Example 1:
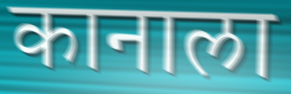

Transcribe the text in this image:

कानाला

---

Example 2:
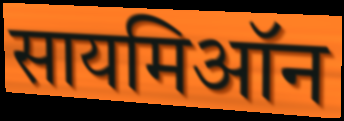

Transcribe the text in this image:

सायमिऑन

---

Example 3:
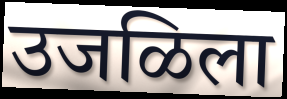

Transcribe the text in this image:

उजळिला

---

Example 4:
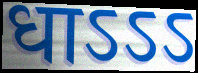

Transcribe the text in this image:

धाऽऽऽ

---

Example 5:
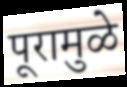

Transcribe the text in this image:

पूरामुळे